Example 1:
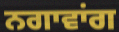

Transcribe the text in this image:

ਨਗਾਵਾਂਗ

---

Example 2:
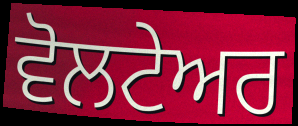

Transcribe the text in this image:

ਵੋਲਟੇਅਰ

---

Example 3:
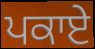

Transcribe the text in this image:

ਪਕਾਏ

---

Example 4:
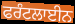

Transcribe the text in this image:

ਫਰੰਟਲਾਈਨ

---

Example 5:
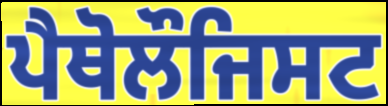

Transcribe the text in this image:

ਪੈਥੋਲੌਜਿਸਟ